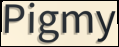
Pigmy